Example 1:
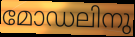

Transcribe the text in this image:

മോഡലിനു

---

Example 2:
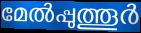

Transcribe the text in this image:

മേൽപ്പുത്തൂർ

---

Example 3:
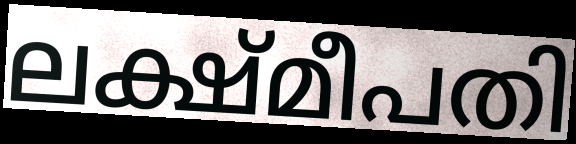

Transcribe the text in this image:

ലക്ഷ്മീപതി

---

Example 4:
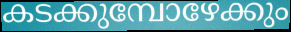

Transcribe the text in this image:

കടക്കുമ്പോഴേക്കും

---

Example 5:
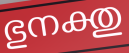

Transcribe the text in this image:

ഭുനക്തു